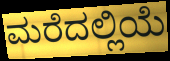
ಮರೆದಲ್ಲಿಯೆ